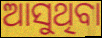
ଆସୁଥିବା